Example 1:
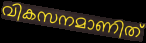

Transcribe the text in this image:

വികസനമാണിത്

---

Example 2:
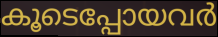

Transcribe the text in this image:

കൂടെപ്പോയവർ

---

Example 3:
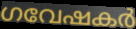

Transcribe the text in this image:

ഗവേഷകർ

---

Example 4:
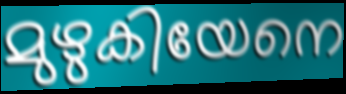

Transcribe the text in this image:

മുഴുകിയേനെ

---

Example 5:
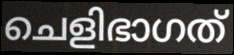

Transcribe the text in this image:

ചെളിഭാഗത്